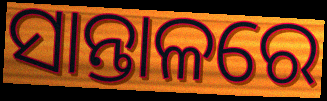
ସାନ୍ତାଳରେ